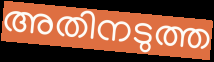
അതിനടുത്ത